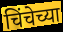
चिंचेच्या